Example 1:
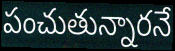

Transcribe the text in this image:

పంచుతున్నారనే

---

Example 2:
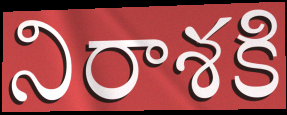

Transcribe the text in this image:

నిరాశకి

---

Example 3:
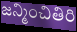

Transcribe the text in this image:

జన్మించితిరి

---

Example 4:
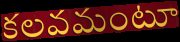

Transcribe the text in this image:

కలవమంటూ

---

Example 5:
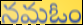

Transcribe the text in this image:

నమఓం